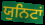
ਯੁਨਿਟਾਂ